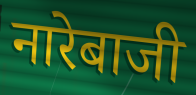
नारेबाजी